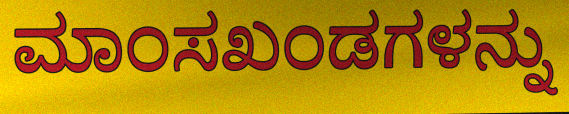
ಮಾಂಸಖಂಡಗಳನ್ನು